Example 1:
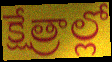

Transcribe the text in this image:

క్షేత్రాల్లో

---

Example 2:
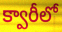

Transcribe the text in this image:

క్వారీలో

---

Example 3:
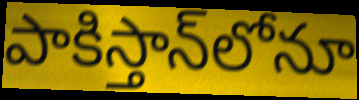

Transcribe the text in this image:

పాకిస్తాన్‌లోనూ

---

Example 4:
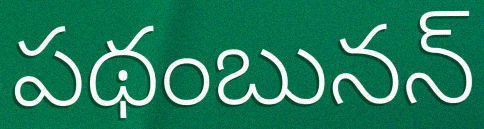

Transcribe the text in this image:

పథంబునన్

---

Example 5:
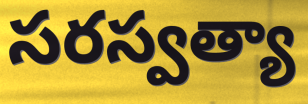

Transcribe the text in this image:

సరస్వత్యా